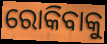
ରୋକିବାକୁ